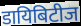
डायिबिटीज